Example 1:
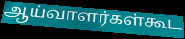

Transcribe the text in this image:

ஆய்வாளர்கள்கூட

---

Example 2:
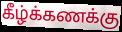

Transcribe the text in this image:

கீழ்க்கணக்கு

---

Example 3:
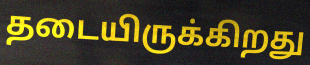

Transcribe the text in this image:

தடையிருக்கிறது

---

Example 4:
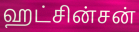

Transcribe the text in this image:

ஹட்சின்சன்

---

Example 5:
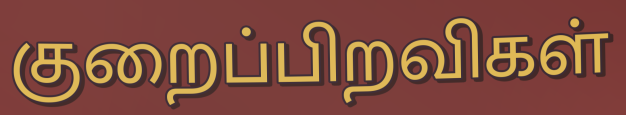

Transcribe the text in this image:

குறைப்பிறவிகள்